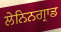
ਲੇਨਿਨਗ੍ਰਾਡ